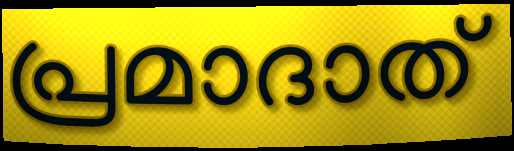
പ്രമാദാത്